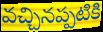
వచ్చినప్పటికి